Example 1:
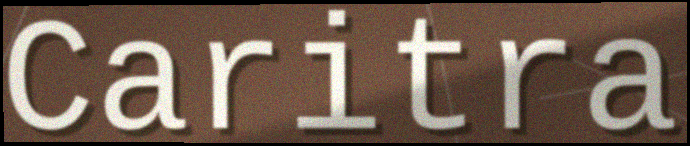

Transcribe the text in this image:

Caritra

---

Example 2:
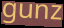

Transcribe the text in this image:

gunz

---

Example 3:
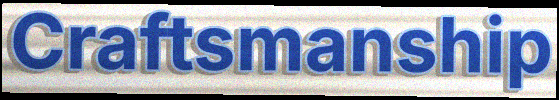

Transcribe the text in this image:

Craftsmanship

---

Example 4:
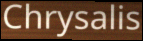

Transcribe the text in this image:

Chrysalis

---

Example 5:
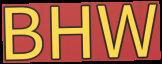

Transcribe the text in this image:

BHW